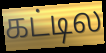
கட்டில